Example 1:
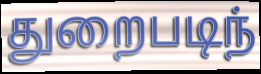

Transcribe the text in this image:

துறைபடிந்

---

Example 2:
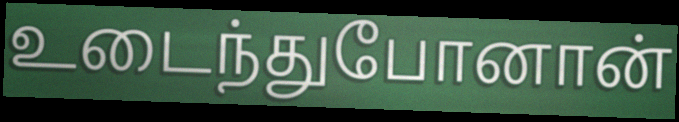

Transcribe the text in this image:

உடைந்துபோனான்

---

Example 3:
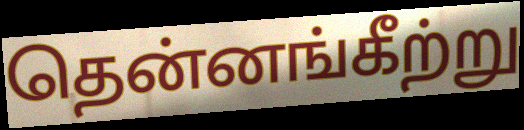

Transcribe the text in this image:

தென்னங்கீற்று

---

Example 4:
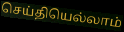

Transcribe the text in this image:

செய்தியெல்லாம்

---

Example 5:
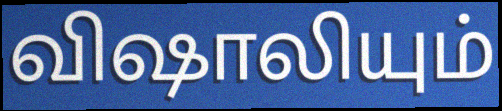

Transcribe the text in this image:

விஷாலியும்